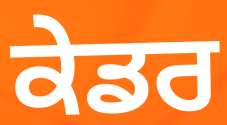
ਕੇਡਰ